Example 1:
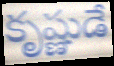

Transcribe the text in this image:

కృష్ణుడే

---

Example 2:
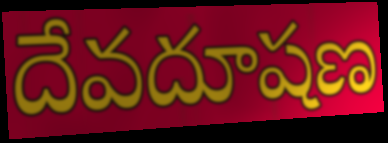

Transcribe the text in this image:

దేవదూషణ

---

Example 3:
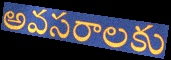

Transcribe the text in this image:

అవసరాలకు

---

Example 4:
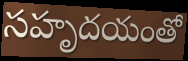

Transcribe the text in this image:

సహృదయంతో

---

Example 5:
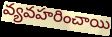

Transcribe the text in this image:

వ్యవహరించాయి